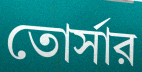
তোর্সার